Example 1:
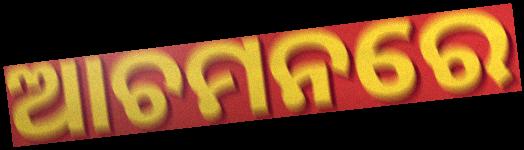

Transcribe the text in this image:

ଆଚମନରେ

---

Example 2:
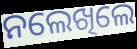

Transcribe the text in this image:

ନଲେଖିଲେ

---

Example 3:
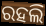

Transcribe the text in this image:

ରହଲି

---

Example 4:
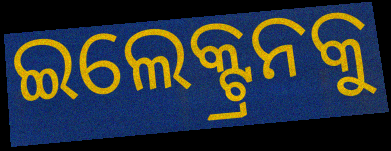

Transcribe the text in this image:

ଇଲେକ୍ଟ୍ରନକୁ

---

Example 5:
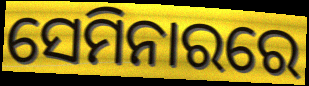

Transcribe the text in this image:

ସେମିନାରରେ